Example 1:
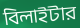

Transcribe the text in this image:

বিলাইটার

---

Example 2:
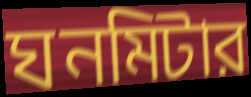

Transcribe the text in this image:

ঘনমিটার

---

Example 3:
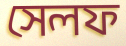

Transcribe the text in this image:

সেলফ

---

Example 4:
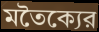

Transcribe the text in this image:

মতৈক্যের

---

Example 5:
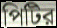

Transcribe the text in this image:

পিটির